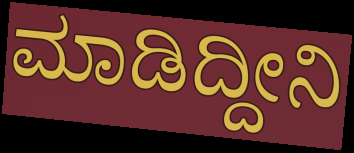
ಮಾಡಿದ್ದೀನಿ